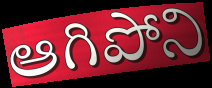
ఆగిపోని